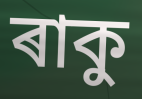
ৰাকু